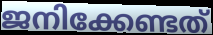
ജനിക്കേണ്ടത്